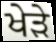
ਖੇੜੇ